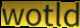
wotld